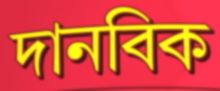
দানবিক